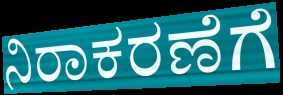
ನಿರಾಕರಣೆಗೆ